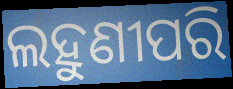
ଲହୁଣୀପରି